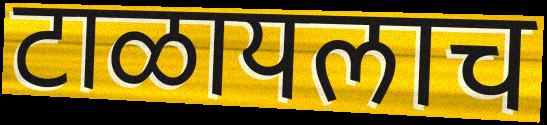
टाळायलाच